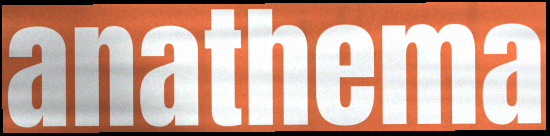
anathema